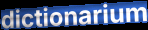
dictionarium